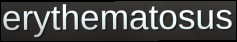
erythematosus